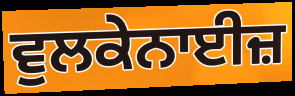
ਵੁਲਕੇਨਾਈਜ਼